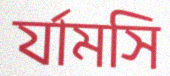
র্যামসি